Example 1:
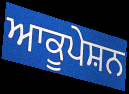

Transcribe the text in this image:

ਆਕੂਪੇਸ਼ਨ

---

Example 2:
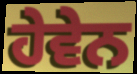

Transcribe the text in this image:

ਹੇਵੇਨ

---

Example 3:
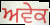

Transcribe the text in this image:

ਅਵੇਕ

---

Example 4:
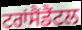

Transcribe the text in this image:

ਟਰਾਂਸੈਂਡੈਂਟਲ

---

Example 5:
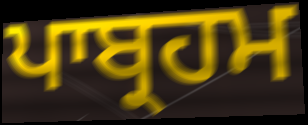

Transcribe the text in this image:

ਪਾਬ੍ਰਹਮ